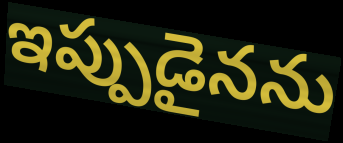
ఇప్పుడైనను